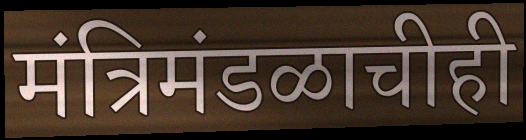
मंत्रिमंडळाचीही